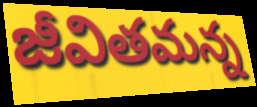
జీవితమన్న